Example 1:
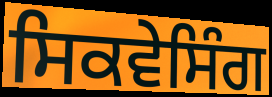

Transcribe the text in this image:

ਸਿਕਵੇਸਿੰਗ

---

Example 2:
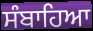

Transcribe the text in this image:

ਸੰਬਾਹਿਆ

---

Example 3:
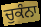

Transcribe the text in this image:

ਚੁਕੰਨਾ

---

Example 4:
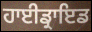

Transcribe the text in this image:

ਹਾਈਡ੍ਰਾਇਡ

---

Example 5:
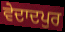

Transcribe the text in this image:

ਵੇਦਾਦਪੁਰ